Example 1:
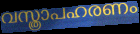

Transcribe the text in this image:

വസ്ത്രാപഹരണം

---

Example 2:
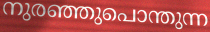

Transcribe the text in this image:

നുരഞ്ഞുപൊന്തുന്ന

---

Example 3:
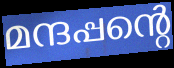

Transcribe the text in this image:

മന്ദപ്പന്റെ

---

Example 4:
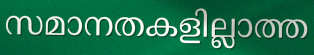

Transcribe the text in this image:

സമാനതകളില്ലാത്ത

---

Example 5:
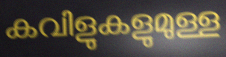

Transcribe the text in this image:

കവിളുകളുമുള്ള